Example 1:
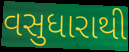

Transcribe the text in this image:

વસુધારાથી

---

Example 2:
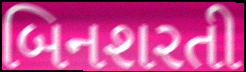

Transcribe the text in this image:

બિનશરતી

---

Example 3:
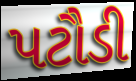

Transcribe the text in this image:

પટૌડી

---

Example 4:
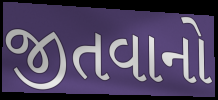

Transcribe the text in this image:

જીતવાનો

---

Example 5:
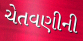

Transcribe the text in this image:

ચેતવણીની